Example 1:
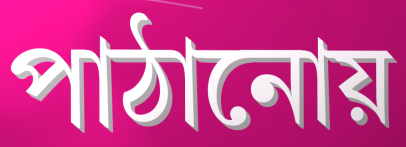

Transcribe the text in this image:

পাঠানোয়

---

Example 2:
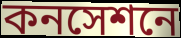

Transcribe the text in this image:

কনসেশনে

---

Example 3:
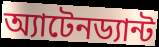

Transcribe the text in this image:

অ্যাটেনড্যান্ট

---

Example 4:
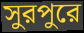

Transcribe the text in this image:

সুরপুরে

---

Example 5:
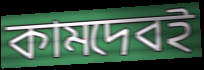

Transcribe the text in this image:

কামদেবই